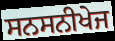
ਸਨਸਨੀਖੇਜ